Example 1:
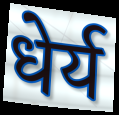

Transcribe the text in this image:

धेर्य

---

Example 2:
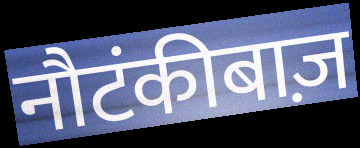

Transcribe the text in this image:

नौटंकीबाज़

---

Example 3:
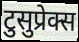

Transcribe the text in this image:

टुसुप्रेक्स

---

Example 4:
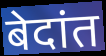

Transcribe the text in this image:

बेदांत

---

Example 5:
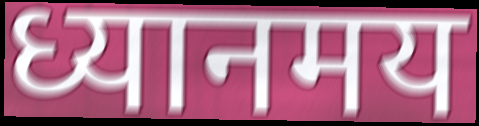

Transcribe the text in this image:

ध्यानमय